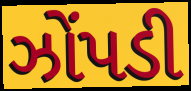
ઝોંપડી